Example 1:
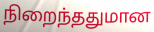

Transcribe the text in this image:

நிறைந்ததுமான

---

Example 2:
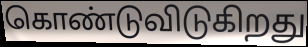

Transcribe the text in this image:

கொண்டுவிடுகிறது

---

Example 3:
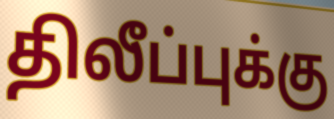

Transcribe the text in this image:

திலீப்புக்கு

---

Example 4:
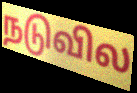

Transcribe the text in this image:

நடுவில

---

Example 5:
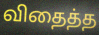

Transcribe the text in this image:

விதைத்த